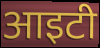
आइटी